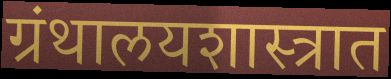
ग्रंथालयशास्त्रात